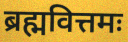
ब्रह्मवित्तमः